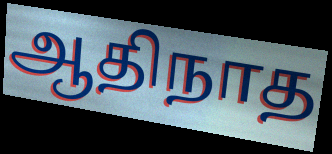
ஆதிநாத